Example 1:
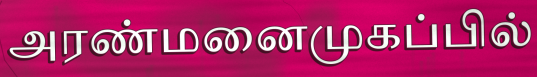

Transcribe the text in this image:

அரண்மனைமுகப்பில்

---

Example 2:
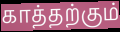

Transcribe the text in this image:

காத்தற்கும்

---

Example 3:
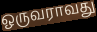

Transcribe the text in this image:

ஒருவராவது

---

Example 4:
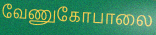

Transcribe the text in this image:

வேணுகோபாலை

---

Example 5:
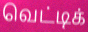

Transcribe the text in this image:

வெட்டிக்